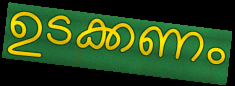
ഉടക്കണം